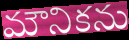
మౌనికను